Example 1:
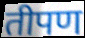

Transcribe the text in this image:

तीपण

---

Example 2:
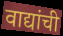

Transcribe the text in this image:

वाद्यांची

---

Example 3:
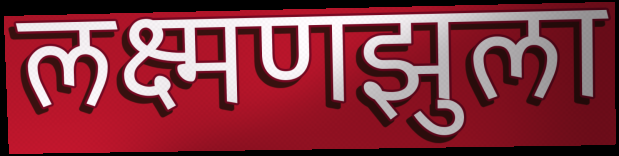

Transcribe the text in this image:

लक्ष्मणझुला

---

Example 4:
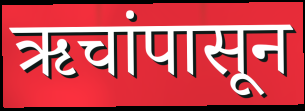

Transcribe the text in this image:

ऋचांपासून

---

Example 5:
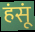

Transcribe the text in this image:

हंसूं